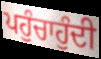
ਪਹੁੰਚਾਹੁੰਦੀ